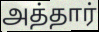
அத்தார்